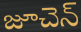
జూచెన్